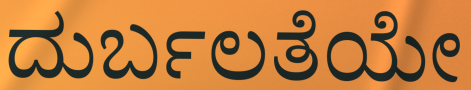
ದುರ್ಬಲತೆಯೇ